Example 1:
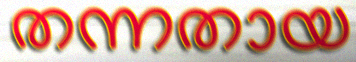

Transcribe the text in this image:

തന്നതായ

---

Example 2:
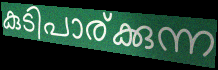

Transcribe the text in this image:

കുടിപാര്ക്കുന്ന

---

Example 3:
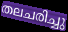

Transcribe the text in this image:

തലചരിച്ചു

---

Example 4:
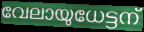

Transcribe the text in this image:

വേലായുധേട്ടന്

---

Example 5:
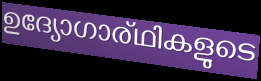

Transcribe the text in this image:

ഉദ്യോഗാര്ഥികളുടെ